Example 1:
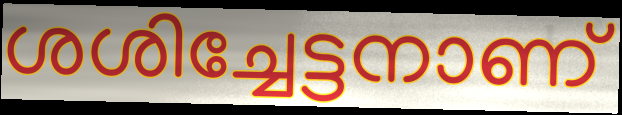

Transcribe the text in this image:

ശശിച്ചേട്ടനാണ്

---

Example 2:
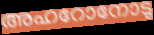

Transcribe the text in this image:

അഹറോനോടു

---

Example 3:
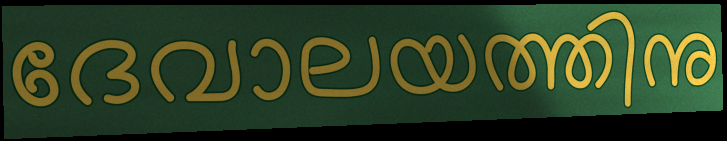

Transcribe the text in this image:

ദേവാലയത്തിനു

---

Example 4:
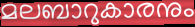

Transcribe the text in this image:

മലബാറുകാരനും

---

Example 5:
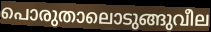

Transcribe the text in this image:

പൊരുതാലൊടുങ്ങുവീല